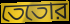
তেতোর